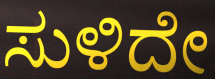
ಸುಳಿದೇ